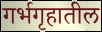
गर्भगृहातील